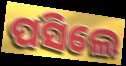
ପସିଲେ